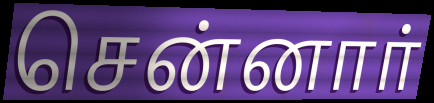
சென்னார்